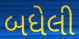
બધેલી